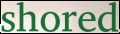
shored